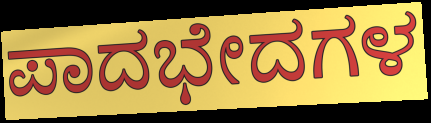
ಪಾದಭೇದಗಳ